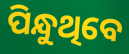
ପିନ୍ଧୁଥିବେ